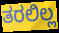
ತರಲಿಲ್ಲ